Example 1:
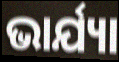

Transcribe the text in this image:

ଭାର୍ଯ୍ୟା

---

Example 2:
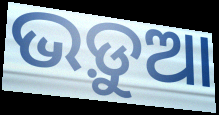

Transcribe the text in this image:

ଭଡ଼ୁଆ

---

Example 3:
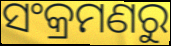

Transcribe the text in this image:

ସଂକ୍ରମଣରୁ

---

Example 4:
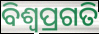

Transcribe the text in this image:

ବିଶ୍ବପ୍ରଗତି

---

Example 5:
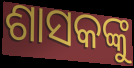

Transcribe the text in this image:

ଶାସକଙ୍କୁ